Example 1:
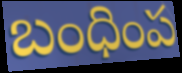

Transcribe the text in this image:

బంధింప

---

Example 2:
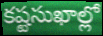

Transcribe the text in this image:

కష్టసుఖాల్లో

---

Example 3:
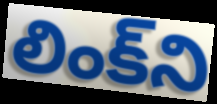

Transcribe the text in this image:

లింక్‌ని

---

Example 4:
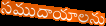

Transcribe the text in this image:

సముదాయాలను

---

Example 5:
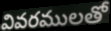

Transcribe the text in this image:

వివరములతో